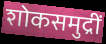
शोकसमुद्रीं